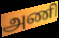
அணி